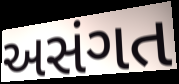
અસંગત